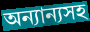
অন্যান্যসহ